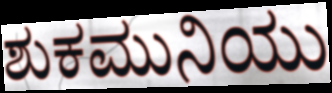
ಶುಕಮುನಿಯು